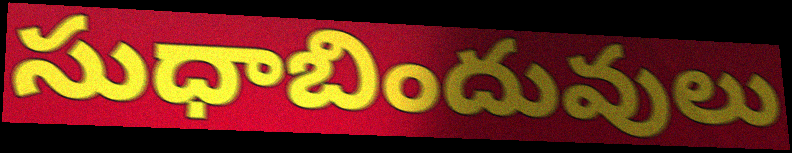
సుధాబిందువులు